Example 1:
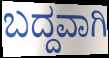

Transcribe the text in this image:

ಬದ್ದವಾಗಿ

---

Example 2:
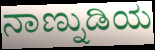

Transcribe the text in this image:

ನಾಣ್ನುಡಿಯ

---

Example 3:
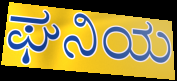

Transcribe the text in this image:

ಘನಿಯ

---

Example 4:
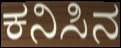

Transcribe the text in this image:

ಕನಿಸಿನ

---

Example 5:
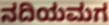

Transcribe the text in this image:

ನದಿಯಮಗ